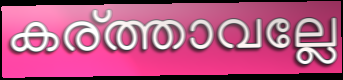
കര്ത്താവല്ലേ